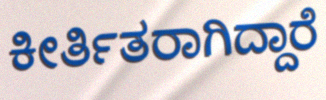
ಕೀರ್ತಿತರಾಗಿದ್ದಾರೆ